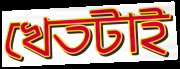
খেতটাই